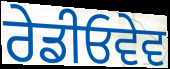
ਰੇਡੀਓਵੇਵ